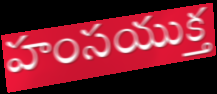
హంసయుక్త